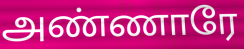
அண்ணாரே